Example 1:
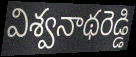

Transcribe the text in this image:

విశ్వనాథరెడ్డి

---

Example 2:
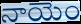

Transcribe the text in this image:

నాయెం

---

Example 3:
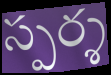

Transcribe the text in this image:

స్పర్శ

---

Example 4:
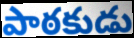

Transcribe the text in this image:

పాఠకుడు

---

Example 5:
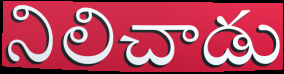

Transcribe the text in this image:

నిలిచాడు